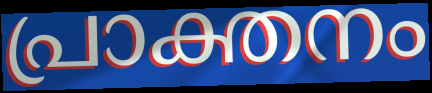
പ്രാക്തനം